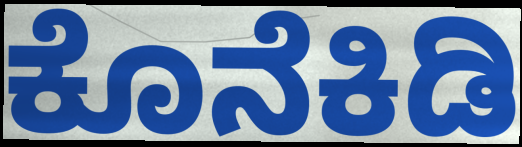
ಕೊನೆಕಿಡಿ